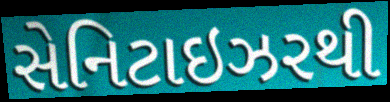
સેનિટાઇઝરથી